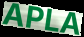
APLA